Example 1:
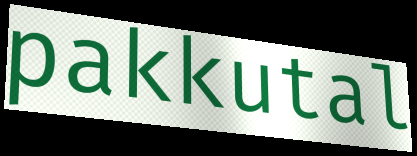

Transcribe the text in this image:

pakkutal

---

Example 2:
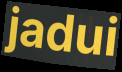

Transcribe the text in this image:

jadui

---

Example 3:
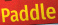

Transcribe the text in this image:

Paddle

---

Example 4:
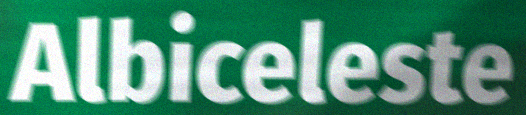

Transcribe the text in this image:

Albiceleste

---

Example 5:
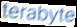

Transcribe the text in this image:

terabyte